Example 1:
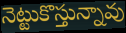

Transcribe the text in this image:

నెట్టుకొస్తున్నావు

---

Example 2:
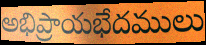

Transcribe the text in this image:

అభిప్రాయభేదములు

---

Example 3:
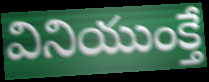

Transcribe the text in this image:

వినియుంక్తే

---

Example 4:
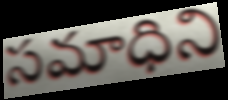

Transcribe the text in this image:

సమాధిని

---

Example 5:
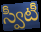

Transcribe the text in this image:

స్వీటీ